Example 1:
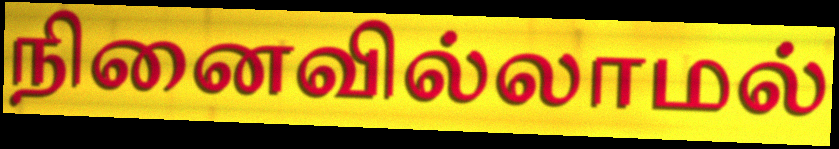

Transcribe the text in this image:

நினைவில்லாமல்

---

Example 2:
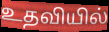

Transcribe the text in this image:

உதவியில்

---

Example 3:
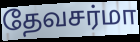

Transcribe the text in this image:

தேவசர்மா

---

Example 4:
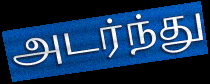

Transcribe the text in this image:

அடர்ந்து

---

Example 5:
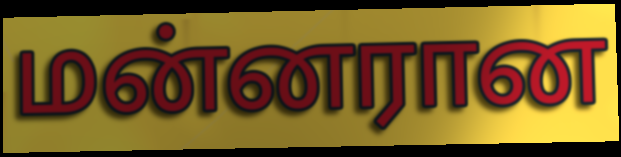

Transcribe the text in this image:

மன்னரான